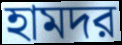
হামদর